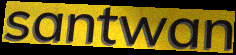
santwan